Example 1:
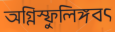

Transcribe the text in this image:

অগ্নিস্ফুলিঙ্গবৎ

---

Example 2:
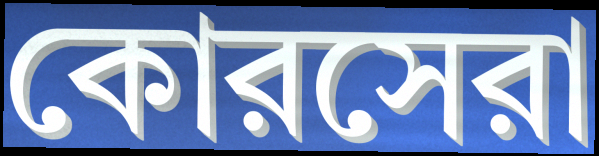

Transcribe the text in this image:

কোরসেরা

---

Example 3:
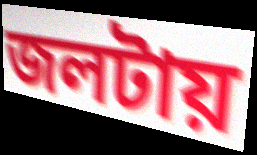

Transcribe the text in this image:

জলটায়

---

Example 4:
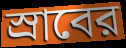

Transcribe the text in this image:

স্রাবের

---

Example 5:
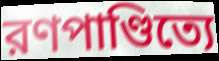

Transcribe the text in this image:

রণপাণ্ডিত্যে